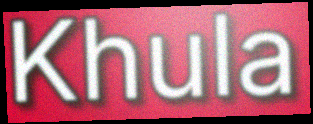
Khula